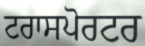
ਟਰਾਸਪੋਰਟਰ